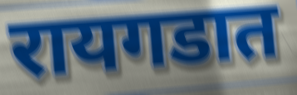
रायगडात